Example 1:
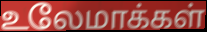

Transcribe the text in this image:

உலேமாக்கள்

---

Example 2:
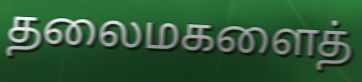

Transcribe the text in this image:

தலைமகளைத்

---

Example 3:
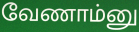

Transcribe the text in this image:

வேணாம்னு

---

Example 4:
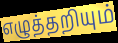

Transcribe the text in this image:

எழுத்தறியும்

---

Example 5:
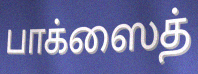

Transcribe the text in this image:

பாக்ஸைத்